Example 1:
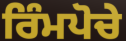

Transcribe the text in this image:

ਰਿੰਮਪੋਚੇ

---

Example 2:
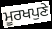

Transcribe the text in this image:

ਮੂਰਖਪੁਣੇ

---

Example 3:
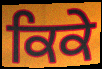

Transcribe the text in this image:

ਕਿਕੇ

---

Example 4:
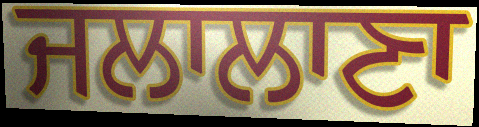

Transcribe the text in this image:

ਜਲਾਲਾਣਾ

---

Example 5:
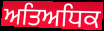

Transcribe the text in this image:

ਅਤਿਅਧਿਕ